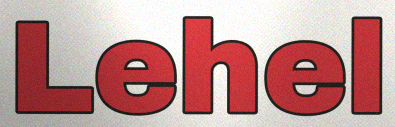
Lehel